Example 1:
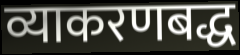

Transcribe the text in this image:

व्याकरणबद्ध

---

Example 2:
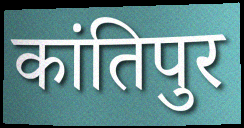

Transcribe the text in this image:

कांतिपुर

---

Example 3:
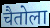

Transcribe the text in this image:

चैतोला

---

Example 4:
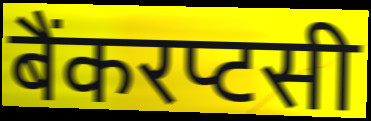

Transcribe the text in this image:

बैंकरप्टसी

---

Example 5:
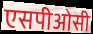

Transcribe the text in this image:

एसपीओसी